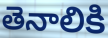
తెనాలికి